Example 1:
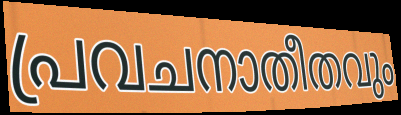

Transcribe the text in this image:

പ്രവചനാതീതവും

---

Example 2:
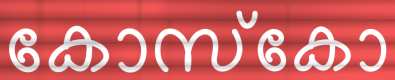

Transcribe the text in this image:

കോസ്കോ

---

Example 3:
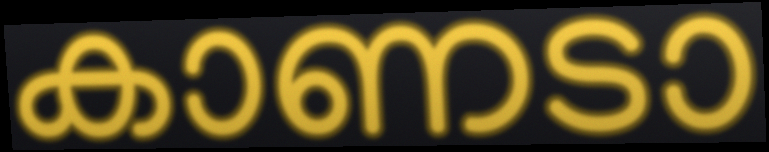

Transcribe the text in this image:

കാണടാ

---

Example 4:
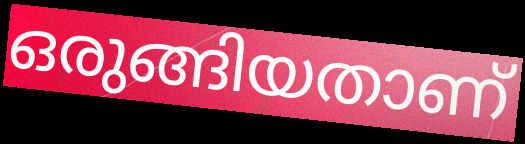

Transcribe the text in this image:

ഒരുങ്ങിയതാണ്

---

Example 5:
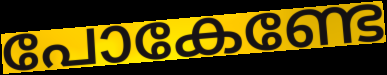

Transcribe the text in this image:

പോകേണ്ടേ